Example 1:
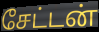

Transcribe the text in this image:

சேட்டன்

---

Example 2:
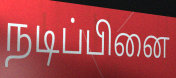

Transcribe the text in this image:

நடிப்பினை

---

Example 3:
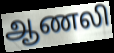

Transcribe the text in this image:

ஆணலி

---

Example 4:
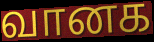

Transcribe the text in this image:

வானக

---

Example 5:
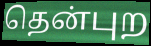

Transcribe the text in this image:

தென்புற